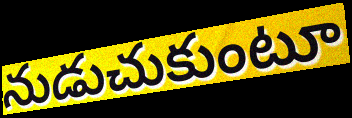
నుడుచుకుంటూ